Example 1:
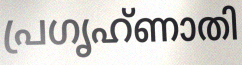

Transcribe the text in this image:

പ്രഗൃഹ്ണാതി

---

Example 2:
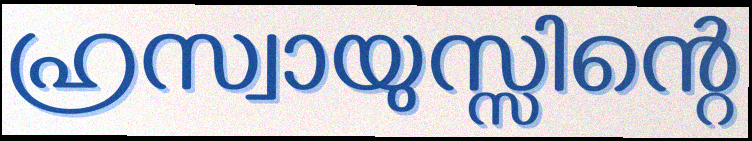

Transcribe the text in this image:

ഹ്രസ്വായുസ്സിന്റെ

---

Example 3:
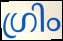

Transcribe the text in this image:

ഗ്രിം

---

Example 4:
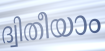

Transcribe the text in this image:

ദ്വിതീയാം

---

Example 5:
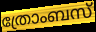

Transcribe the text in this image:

ത്രോംബസ്